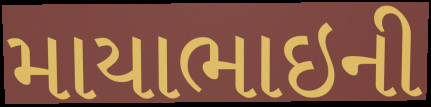
માયાભાઇની